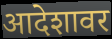
आदेशावर